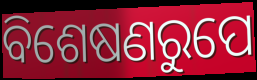
ବିଶେଷଣରୁପେ